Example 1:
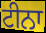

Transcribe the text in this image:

ਟੀਨਾ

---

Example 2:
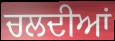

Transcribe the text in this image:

ਚਲਦੀਆਂ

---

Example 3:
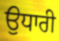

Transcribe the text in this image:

ਉਧਾਰੀ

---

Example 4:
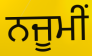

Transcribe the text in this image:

ਨਜੂਮੀਂ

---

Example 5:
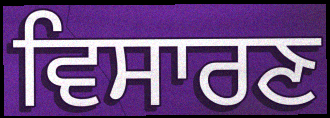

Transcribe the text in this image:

ਵਿਸਾਰਣ